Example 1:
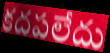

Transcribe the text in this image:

కదపలేదు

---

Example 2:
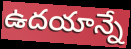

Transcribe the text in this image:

ఉదయాన్నే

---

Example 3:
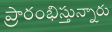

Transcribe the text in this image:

ప్రారంభిస్తున్నారు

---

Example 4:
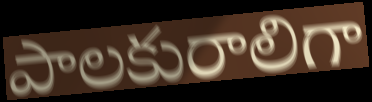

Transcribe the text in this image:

పాలకురాలిగా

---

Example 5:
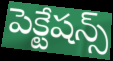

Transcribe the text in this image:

పెక్టేషన్స్